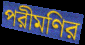
পরীমণির